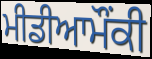
ਮੀਡੀਆਮੌਂਕੀ